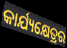
କାର୍ଯ୍ୟକ୍ଷେତ୍ରର